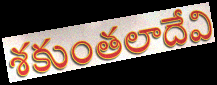
శకుంతలాదేవి